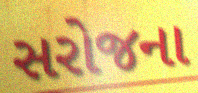
સરોજના